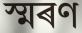
স্মৰণ